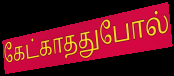
கேட்காததுபோல்